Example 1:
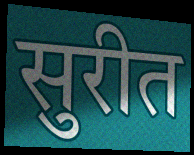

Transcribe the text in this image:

सुरीत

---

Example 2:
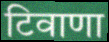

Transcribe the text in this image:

टिवाणा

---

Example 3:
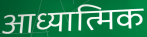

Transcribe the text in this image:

आध्यात्मिक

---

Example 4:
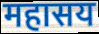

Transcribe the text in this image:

महासय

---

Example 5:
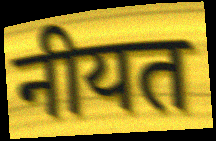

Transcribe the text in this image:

नीयत